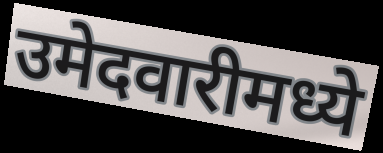
उमेदवारीमध्ये